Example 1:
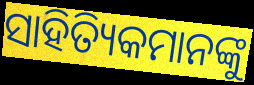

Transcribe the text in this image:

ସାହିତ୍ୟିକମାନଙ୍କୁ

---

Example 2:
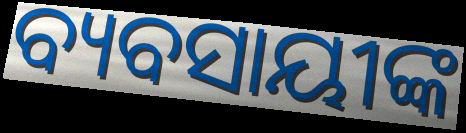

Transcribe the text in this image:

ବ୍ୟବସାୟୀଙ୍କ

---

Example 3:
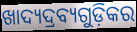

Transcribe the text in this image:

ଖାଦ୍ୟଦ୍ରବ୍ୟଗୁଡ଼ିକର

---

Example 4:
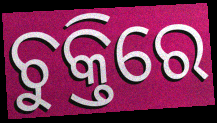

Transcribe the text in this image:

ଚୁକ୍ତିରେ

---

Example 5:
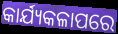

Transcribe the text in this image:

କାର୍ଯ୍ୟକଳାପରେ